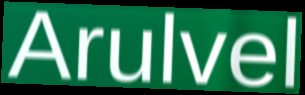
Arulvel